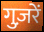
गुज़रें